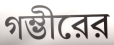
গম্ভীরের